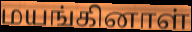
மயங்கினாள்